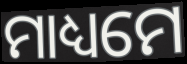
ମାଧ୍ୟମେ